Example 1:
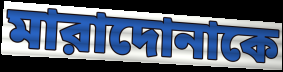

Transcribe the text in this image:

মারাদোনাকে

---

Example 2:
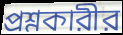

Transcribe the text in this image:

প্রশ্নকারীর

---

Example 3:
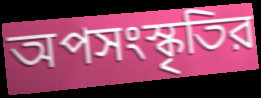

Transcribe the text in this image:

অপসংস্কৃতির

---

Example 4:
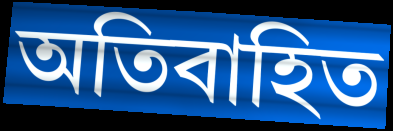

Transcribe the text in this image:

অতিবাহিত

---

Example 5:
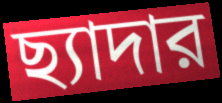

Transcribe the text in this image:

ছ্যাদার